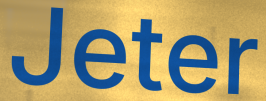
Jeter